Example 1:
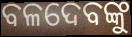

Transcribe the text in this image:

ବଳଦେବଙ୍କୁ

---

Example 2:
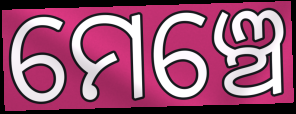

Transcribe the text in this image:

ମେଞ୍ଚେ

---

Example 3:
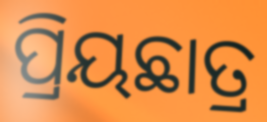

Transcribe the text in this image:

ପ୍ରିୟଛାତ୍ର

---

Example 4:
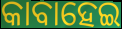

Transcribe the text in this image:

କାବାହେଇ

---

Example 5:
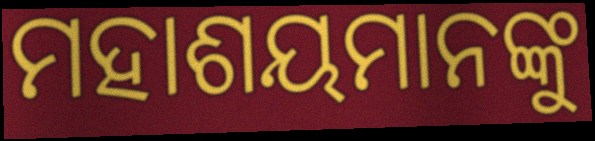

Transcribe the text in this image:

ମହାଶୟମାନଙ୍କୁ